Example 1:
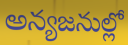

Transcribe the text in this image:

అన్యజనుల్లో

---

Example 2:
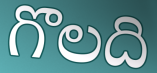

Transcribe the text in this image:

గొలది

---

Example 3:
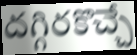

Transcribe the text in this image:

దగ్గిరకొచ్చే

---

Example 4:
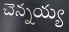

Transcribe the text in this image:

చెన్నయ్య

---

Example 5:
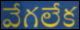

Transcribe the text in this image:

వేగలేక